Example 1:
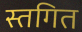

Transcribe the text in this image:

स्तगित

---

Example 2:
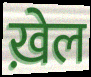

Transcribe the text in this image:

ख़ेल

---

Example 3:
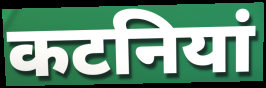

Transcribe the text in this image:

कटनियां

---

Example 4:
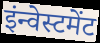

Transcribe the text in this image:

इंन्वेस्टमेंट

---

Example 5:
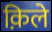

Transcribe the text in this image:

क़िले